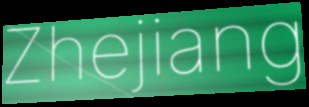
Zhejiang